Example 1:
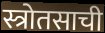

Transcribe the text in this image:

स्त्रोतसाची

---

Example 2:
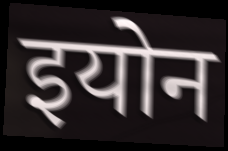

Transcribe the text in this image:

इयोन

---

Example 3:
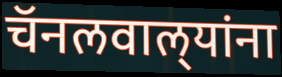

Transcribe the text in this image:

चॅनलवाल्यांना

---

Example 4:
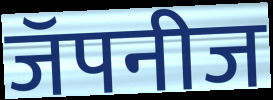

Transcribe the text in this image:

जॅपनीज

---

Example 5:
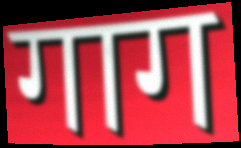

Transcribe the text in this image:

गाग